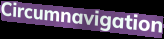
Circumnavigation